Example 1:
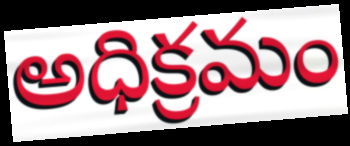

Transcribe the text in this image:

అధిక్రమం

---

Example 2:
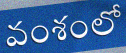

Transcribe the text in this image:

వంశంలో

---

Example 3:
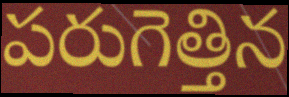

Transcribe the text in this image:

పరుగెత్తిన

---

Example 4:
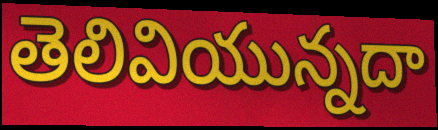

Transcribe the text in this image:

తెలివియున్నదా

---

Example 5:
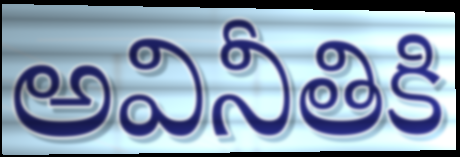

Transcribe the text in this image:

అవినీతికి